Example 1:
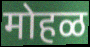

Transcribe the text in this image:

मोहळ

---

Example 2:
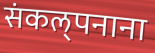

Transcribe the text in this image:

संकल्पनाना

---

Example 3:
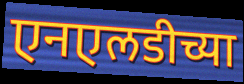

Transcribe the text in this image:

एनएलडीच्या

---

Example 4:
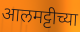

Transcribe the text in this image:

आलमट्टीच्या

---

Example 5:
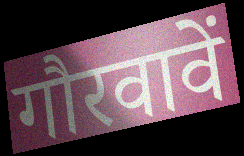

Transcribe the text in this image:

गौरवावें